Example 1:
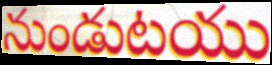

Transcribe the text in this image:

నుండుటయు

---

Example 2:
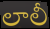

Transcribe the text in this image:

లాలీ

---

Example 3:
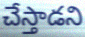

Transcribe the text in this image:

చేస్తాడని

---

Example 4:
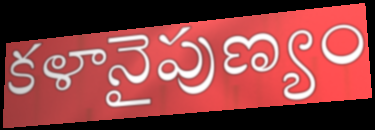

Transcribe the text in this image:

కళానైపుణ్యం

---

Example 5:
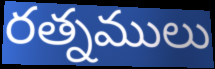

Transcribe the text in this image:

రత్నములు